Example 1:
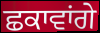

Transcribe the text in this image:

ਛਕਾਵਾਂਗੇ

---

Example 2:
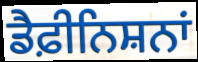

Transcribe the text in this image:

ਡੈਫ਼ੀਨਿਸ਼ਨਾਂ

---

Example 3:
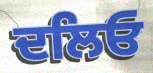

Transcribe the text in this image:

ਦਲਿਓ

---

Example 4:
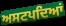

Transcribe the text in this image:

ਅਸਟਪਦਿਆਂ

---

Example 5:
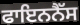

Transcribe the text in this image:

ਫਾਇਨਨੈੱਸ